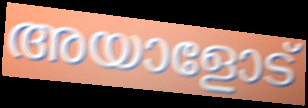
അയാളോട്